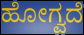
ಹೋಗ್ವದೆ